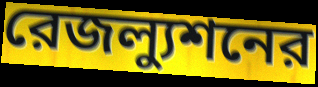
রেজল্যুশনের